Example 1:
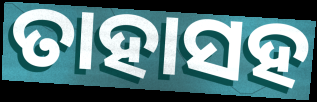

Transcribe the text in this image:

ତାହାସହ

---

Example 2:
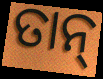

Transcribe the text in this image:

ତାନ୍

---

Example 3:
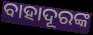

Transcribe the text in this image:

ବାହାଦୂରଙ୍କ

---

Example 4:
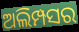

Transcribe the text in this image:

ଅଲିମ୍ପସର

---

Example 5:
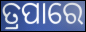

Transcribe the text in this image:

ତ୍ରପାରେ